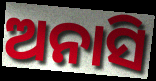
ଅନାସି